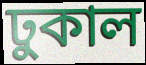
ঢুকাল